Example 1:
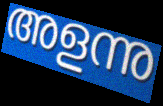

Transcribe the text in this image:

അളന്നു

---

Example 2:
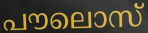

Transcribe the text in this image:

പൗലൊസ്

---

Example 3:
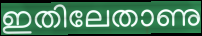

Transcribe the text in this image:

ഇതിലേതാണു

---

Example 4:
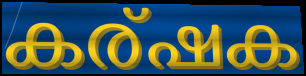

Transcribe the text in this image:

കര്ഷക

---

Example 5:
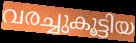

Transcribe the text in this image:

വരച്ചുകൂട്ടിയ